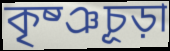
কৃষ্ঞচূড়া